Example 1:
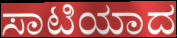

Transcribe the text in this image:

ಸಾಟಿಯಾದ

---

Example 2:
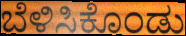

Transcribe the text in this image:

ಬೆಳಿಸಿಕೊಂಡು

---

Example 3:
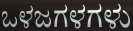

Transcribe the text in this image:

ಒಳಜಗಳಗಳು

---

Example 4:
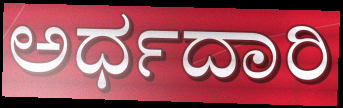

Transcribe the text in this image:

ಅರ್ಧದಾರಿ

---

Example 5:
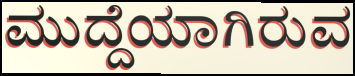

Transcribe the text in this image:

ಮುದ್ದೆಯಾಗಿರುವ